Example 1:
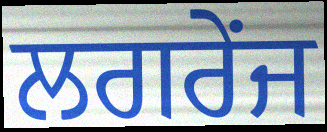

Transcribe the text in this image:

ਲਗਰੇਂਜ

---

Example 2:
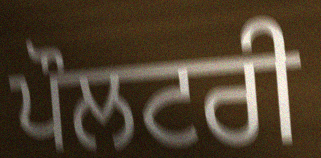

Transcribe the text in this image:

ਪੌਲਟਰੀ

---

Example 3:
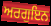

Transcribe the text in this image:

ਅਰਗੁਇਨ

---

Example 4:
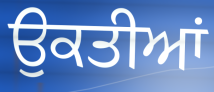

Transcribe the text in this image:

ਉਕਤੀਆਂ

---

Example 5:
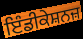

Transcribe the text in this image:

ਇੰਡੀਕੇਸ਼ਨਜ਼